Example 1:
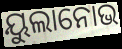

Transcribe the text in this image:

ୟୁଲାନୋଭ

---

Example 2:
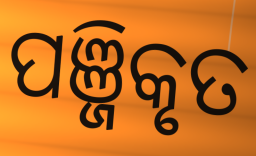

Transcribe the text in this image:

ପଞ୍ଜିକୃତ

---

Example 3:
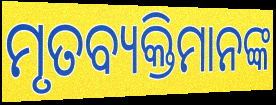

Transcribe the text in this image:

ମୃତବ୍ୟକ୍ତିମାନଙ୍କ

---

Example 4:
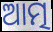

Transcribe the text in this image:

ଆତ୍ମ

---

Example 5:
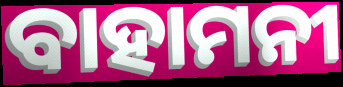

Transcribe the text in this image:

ବାହାମନୀ